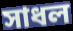
সাধল